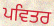
ਪਵਿਤਰ